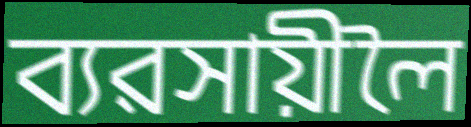
ব্যৱসায়ীলৈ